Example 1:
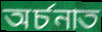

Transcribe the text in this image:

অৰ্চনাত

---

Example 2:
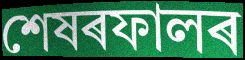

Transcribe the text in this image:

শেষৰফালৰ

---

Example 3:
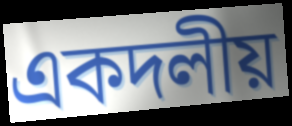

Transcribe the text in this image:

একদলীয়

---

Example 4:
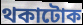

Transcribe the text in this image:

থকাটোক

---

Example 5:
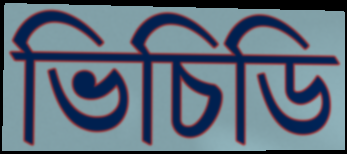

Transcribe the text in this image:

ভিচিডি